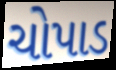
ચોપાડ